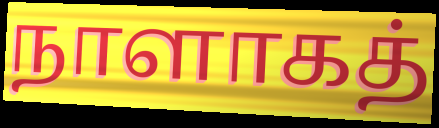
நாளாகத்